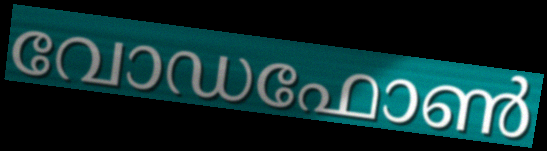
വോഡഫോൺ